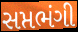
સપ્તભંગી